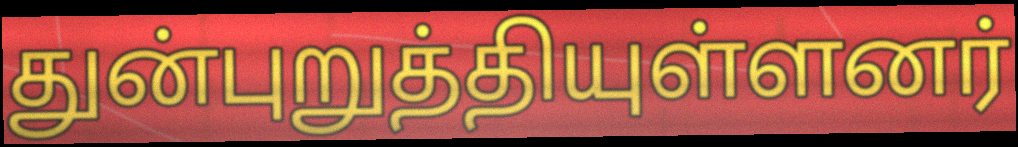
துன்புறுத்தியுள்ளனர்